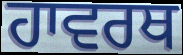
ਹਾਵਰਥ